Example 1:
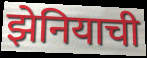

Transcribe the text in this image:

झेनियाची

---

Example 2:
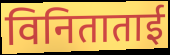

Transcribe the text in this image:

विनिताताई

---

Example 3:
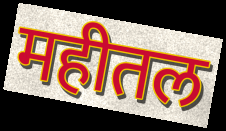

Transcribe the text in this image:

महीतल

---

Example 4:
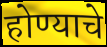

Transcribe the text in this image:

होण्याचे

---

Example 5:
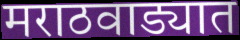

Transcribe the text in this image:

मराठवाड्यात